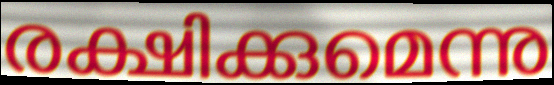
രക്ഷിക്കുമെന്നു